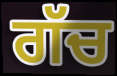
ਗੱਚ